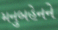
મનુબહેનને